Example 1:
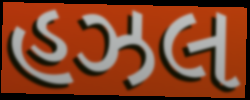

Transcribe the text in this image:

હઝલ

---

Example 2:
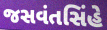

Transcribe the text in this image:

જસવંતસિંહે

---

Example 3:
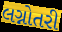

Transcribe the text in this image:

લગ્નોતરી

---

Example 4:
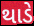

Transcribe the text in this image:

થાડે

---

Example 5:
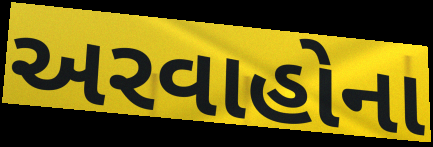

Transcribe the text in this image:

અરવાહોના